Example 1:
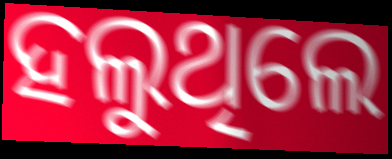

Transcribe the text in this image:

ହଲୁଥିଲେ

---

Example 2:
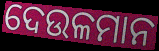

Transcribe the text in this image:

ଦେଉଳମାନ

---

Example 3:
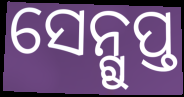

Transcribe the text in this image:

ସେନ୍ଗୁପ୍ତ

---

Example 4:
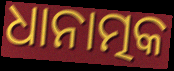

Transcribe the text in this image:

ଧାନାତ୍ମକ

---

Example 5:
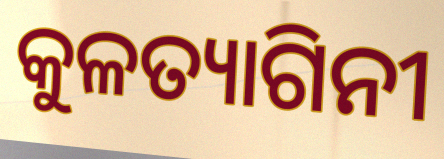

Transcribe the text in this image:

କୁଳତ୍ୟାଗିନୀ